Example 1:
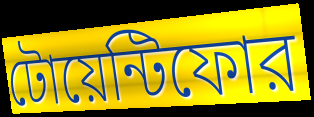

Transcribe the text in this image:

টোয়েন্টিফোর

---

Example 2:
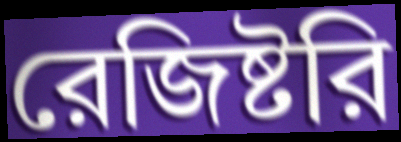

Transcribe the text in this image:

রেজিষ্টরি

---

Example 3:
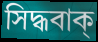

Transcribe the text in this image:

সিদ্ধবাক্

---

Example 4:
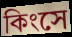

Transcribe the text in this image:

কিংসে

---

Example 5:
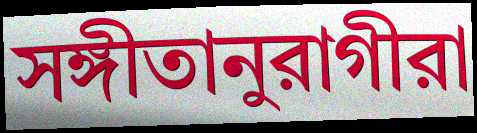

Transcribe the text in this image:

সঙ্গীতানুরাগীরা